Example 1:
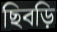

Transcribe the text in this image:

ছিবড়ি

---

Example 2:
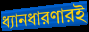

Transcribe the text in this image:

ধ্যানধারণারই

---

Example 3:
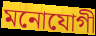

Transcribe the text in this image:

মনোযোগী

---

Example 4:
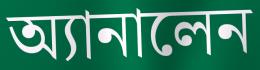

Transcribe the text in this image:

অ্যানালেন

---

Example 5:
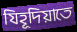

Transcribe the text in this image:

যিহূদিয়াতে